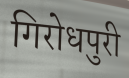
गिरोधपुरी